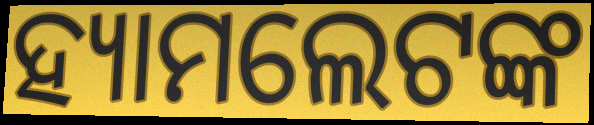
ହ୍ୟାମଲେଟଙ୍କ